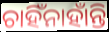
ଚାହିଁନାହାଁନ୍ତି